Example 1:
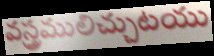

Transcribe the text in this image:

వస్త్రములిచ్చుటయు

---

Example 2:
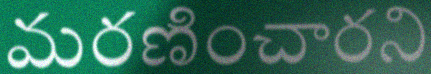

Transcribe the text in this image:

మరణించారని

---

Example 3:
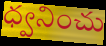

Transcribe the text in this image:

ధ్వనించు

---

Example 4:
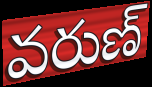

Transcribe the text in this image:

వరుణ్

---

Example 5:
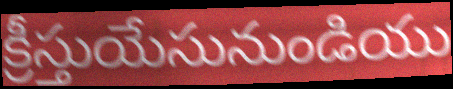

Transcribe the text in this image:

క్రీస్తుయేసునుండియు